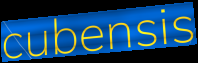
cubensis